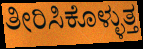
ತೀರಿಸಿಕೊಳ್ಳುತ್ತ